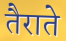
तैराते